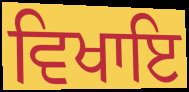
ਵਿਖਾਇ